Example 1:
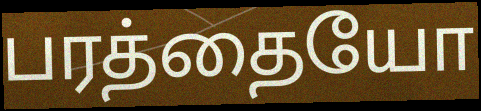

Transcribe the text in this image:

பரத்தையோ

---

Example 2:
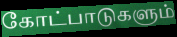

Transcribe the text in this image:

கோட்பாடுகளும்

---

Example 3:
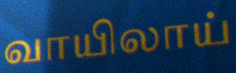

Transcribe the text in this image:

வாயிலாய்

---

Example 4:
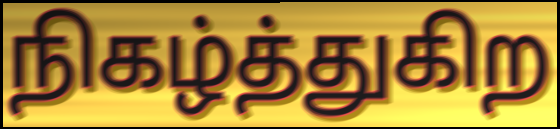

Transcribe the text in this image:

நிகழ்த்துகிற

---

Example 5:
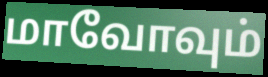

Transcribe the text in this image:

மாவோவும்